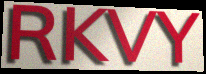
RKVY